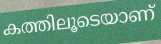
കത്തിലൂടെയാണ്